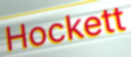
Hockett